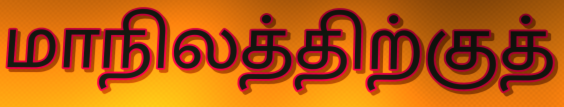
மாநிலத்திற்குத்